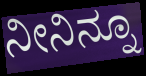
ನೀನಿನ್ನೂ